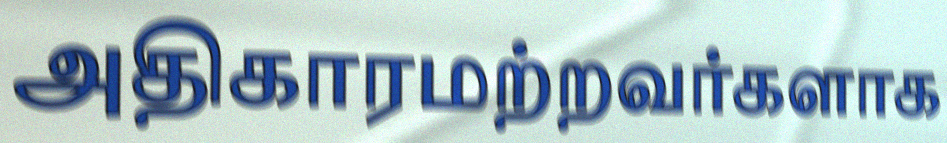
அதிகாரமற்றவர்களாக